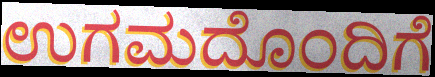
ಉಗಮದೊಂದಿಗೆ